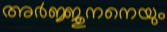
അർജ്ജുനനെയും